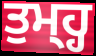
ਤੁਮ੍ਹ੍ਹ